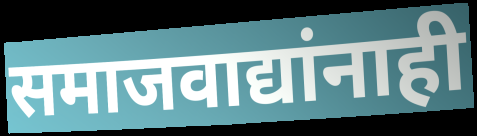
समाजवाद्यांनाही